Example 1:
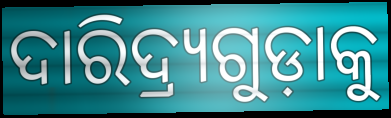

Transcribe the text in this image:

ଦାରିଦ୍ର୍ୟଗୁଡ଼ାକୁ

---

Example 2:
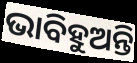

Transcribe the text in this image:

ଭାବିହୁଅନ୍ତି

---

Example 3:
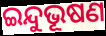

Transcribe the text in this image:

ଇନ୍ଦୁଭୂଷଣ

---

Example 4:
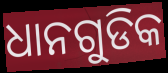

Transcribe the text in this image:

ଧାନଗୁଡିକ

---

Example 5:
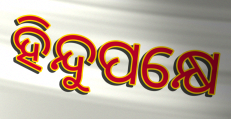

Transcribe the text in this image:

ହିନ୍ଦୁପକ୍ଷେ